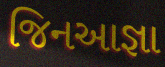
જિનઆજ્ઞા